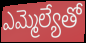
ఎమ్మెల్యేతో